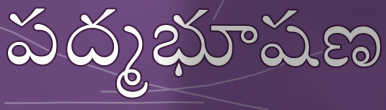
పద్మభూషణ